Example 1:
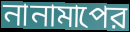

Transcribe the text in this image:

নানামাপের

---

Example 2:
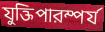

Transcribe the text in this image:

যুক্তিপারম্পর্য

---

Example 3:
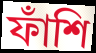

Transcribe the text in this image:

ফাঁশি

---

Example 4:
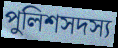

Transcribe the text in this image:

পুলিশসদস্য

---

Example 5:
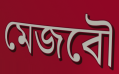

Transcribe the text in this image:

মেজবৌ